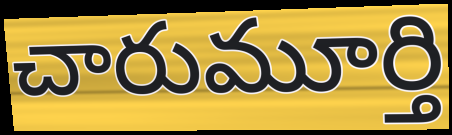
చారుమూర్తి